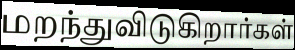
மறந்துவிடுகிறார்கள்